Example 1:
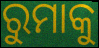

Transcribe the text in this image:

ରୁମାକୁ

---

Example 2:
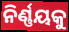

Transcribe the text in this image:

ନିର୍ଣ୍ଣୟକୁ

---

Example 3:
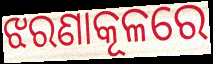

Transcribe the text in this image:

ଝରଣାକୂଳରେ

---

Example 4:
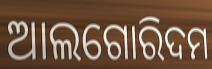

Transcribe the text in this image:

ଆଲଗୋରିଦମ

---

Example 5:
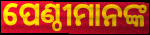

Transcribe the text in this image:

ପେଣ୍ଠୀମାନଙ୍କ